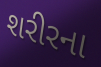
શરીરના